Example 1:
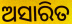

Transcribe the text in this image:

ଅସାରିତ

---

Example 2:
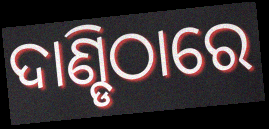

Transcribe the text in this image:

ଦାଣ୍ଡିଠାରେ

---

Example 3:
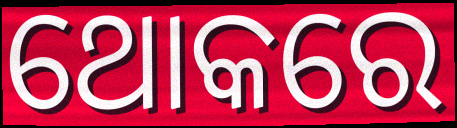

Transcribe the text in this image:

ଥୋକରେ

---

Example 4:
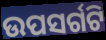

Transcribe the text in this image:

ଉପସର୍ଗଟି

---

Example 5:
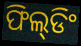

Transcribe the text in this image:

ଫିଲ୍‌ଡିଂ